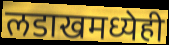
लडाखमध्येही